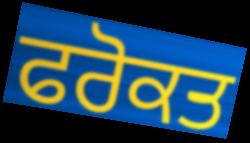
ਫਰੋਕਤ